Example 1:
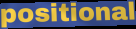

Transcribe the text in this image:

positional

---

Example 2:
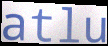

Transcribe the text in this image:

atlu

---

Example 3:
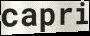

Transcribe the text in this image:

capri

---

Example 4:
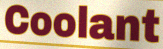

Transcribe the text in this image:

Coolant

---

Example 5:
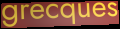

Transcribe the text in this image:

grecques